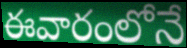
ఈవారంలోనే